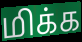
மிக்க